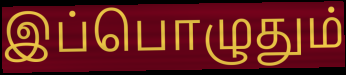
இப்பொழுதும்